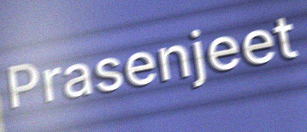
Prasenjeet